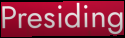
Presiding